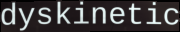
dyskinetic